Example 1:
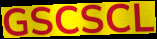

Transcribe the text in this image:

GSCSCL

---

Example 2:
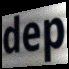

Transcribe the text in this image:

dep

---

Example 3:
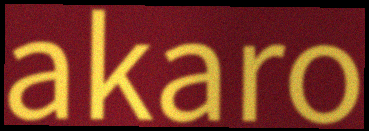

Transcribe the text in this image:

akaro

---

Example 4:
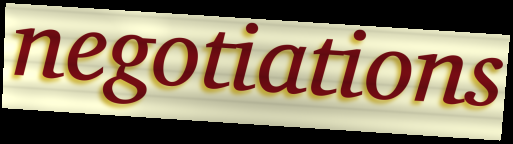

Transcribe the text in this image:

negotiations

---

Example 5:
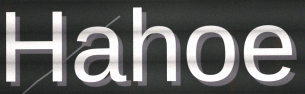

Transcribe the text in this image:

Hahoe